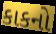
કાકનો